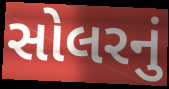
સોલરનું